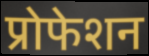
प्रोफेशन